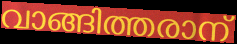
വാങ്ങിത്തരാന്